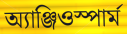
অ্যাঞ্জিওস্পার্ম